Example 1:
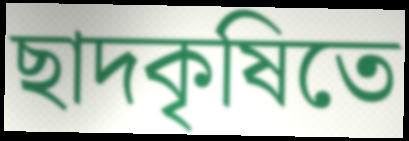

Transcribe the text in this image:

ছাদকৃষিতে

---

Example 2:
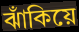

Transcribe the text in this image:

ঝাঁকিয়ে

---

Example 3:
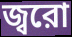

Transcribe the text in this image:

জ্বরো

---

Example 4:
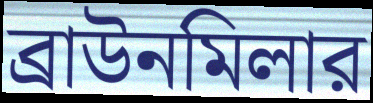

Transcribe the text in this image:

ব্রাউনমিলার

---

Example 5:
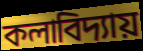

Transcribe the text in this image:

কলাবিদ্যায়